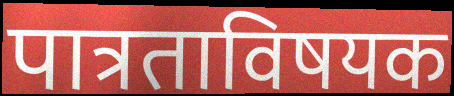
पात्रताविषयक